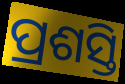
ପ୍ରଶସ୍ତି